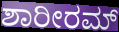
ಶಾರೀರಮ್